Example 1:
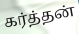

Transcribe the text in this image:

கர்த்தன்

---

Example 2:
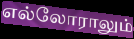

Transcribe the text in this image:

எல்லோராலும்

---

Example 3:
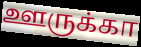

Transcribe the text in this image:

ஊருக்கா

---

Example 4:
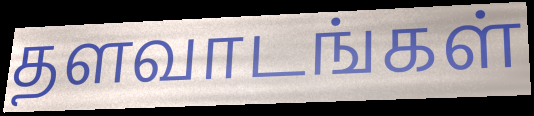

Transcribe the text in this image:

தளவாடங்கள்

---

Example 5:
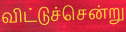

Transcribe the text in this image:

விட்டுச்சென்று